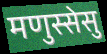
मणुस्सेसु